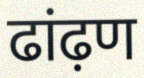
ढांढ़ण